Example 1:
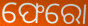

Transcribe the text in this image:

ଫେରୋ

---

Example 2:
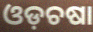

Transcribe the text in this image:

ଓଡ଼ଚଷା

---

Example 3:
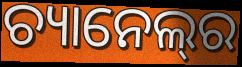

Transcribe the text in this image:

ଚ୍ୟାନେଲ୍‌ର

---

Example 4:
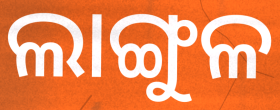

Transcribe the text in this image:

ଲାଙ୍ଗୁଳ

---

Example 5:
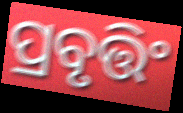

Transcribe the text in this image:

ପ୍ରବୃତ୍ତିଂ